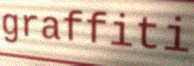
graffiti